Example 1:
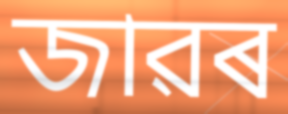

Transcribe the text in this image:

জাৱৰ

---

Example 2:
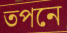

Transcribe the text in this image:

তপনে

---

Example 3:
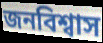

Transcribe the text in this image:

জনবিশ্বাস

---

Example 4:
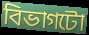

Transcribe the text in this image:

বিভাগটো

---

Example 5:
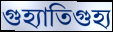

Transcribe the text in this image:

গুহ্যাতিগুহ্য